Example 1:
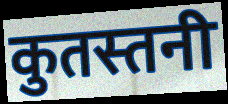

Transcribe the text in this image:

कुतस्तनी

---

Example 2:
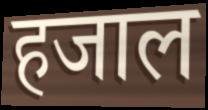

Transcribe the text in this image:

हजाल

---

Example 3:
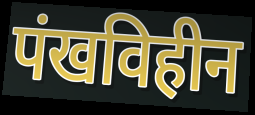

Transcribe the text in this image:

पंखविहीन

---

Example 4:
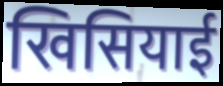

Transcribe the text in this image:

खिसियाई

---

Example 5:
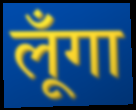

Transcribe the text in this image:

लूँगा